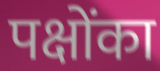
पक्षोंका